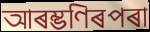
আৰম্ভণিৰপৰা